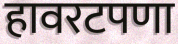
हावरटपणा